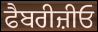
ਫੈਬਰੀਜ਼ੀਓ